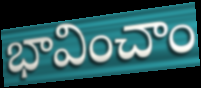
భావించాం